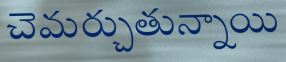
చెమర్చుతున్నాయి